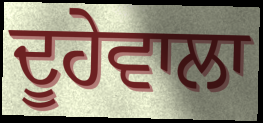
ਦੂਹੇਵਾਲਾ